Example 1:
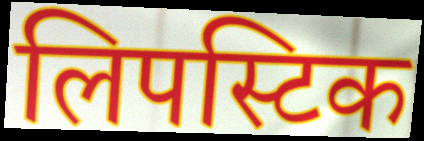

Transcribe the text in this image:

लिपस्टिक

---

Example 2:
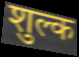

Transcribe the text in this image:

शुल्‍क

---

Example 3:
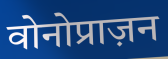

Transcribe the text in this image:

वोनोप्राज़न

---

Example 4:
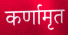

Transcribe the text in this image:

कर्णामृत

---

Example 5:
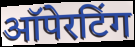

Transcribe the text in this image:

ऑपेरटिंग